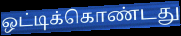
ஒட்டிக்கொண்டது